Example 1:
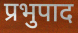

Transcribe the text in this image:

प्रभुपाद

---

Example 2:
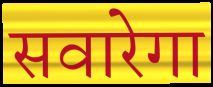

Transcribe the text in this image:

सवारेगा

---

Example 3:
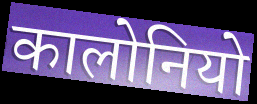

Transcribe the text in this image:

कालोनियो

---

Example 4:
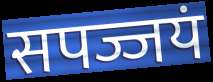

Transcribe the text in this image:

सपज्जयं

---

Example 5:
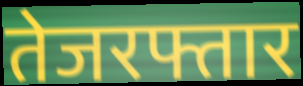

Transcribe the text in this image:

तेजरफ्तार